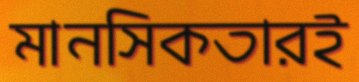
মানসিকতারই